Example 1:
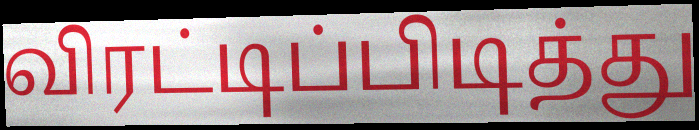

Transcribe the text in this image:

விரட்டிப்பிடித்து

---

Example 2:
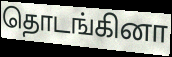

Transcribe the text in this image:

தொடங்கினா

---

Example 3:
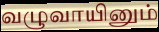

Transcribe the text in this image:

வழுவாயினும்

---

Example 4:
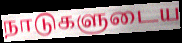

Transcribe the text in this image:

நாடுகளுடைய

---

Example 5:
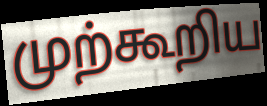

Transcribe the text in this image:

முற்கூறிய